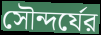
সৌন্দর্যের